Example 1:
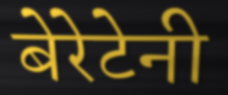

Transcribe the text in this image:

बेरेटेनी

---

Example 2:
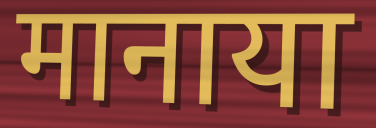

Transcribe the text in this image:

मानाया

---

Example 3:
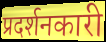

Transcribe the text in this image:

प्रदर्शनकारी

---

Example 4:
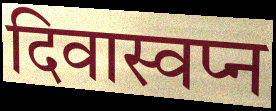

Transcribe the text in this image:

दिवास्‍वप्‍न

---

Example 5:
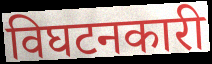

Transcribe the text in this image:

विघटनकारी